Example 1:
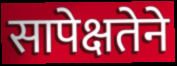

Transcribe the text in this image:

सापेक्षतेने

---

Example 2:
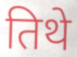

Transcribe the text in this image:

तिथे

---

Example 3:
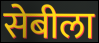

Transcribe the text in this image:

सेबीला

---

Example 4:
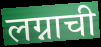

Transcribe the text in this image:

लग्नाची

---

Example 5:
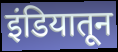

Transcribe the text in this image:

इंडियातून